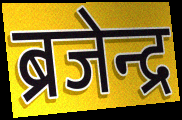
ब्रजेन्द्र